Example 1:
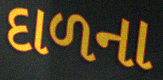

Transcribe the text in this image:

દાળના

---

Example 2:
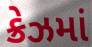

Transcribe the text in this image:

ક્રેઝમાં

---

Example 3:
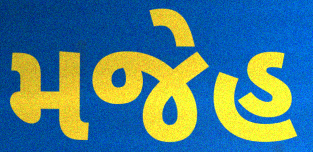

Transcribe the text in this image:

મજેહ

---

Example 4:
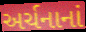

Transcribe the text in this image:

અર્ચનાનાં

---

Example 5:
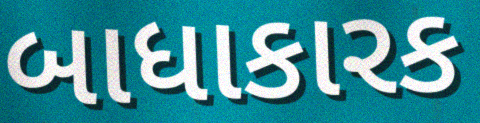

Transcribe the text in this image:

બાધાકારક